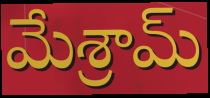
మేశ్రామ్